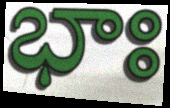
భాః